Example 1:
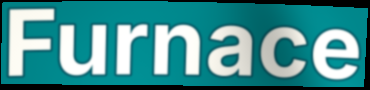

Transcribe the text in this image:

Furnace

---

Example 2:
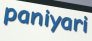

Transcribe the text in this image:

paniyari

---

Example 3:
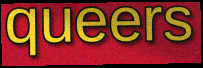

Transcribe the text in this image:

queers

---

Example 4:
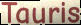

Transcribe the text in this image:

Tauris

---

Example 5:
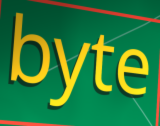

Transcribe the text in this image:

byte